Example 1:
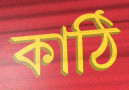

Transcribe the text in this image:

কাঠি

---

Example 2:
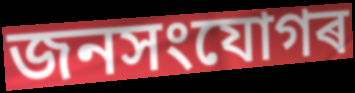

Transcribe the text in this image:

জনসংযোগৰ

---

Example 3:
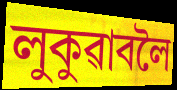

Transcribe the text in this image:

লুকুৱাবলৈ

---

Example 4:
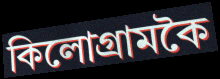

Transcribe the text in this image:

কিলোগ্ৰামকৈ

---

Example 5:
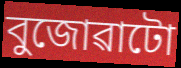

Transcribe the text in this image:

বুজোৱাটো